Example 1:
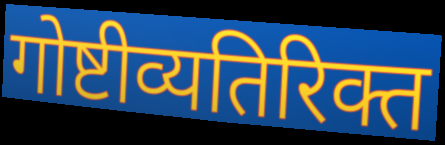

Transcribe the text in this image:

गोष्टीव्यतिरिक्त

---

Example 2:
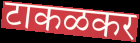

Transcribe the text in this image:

टाकळकर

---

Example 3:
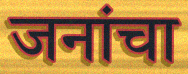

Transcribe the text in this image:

जनांचा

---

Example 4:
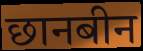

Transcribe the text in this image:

छानबीन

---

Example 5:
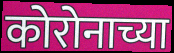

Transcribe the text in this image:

कोरोनाच्या